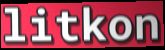
litkon